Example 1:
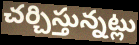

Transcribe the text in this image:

చర్చిస్తున్నట్లు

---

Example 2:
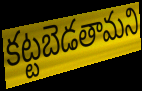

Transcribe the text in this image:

కట్టబెడతామని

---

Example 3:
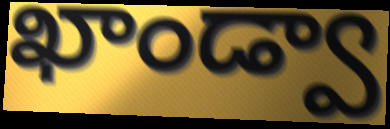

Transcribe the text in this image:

ఖాండ్వా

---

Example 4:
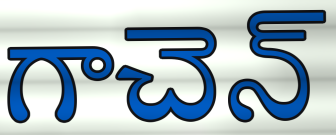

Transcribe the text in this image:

గాచెన్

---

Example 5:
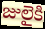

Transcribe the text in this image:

జులైకి